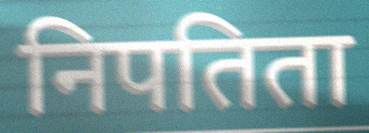
निपतिता